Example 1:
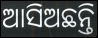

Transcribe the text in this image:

ଆସିଅଛନ୍ତି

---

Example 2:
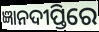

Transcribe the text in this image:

ଜ୍ଞାନଦୀପ୍ତିରେ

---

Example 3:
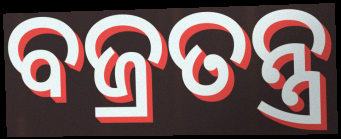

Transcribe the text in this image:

ବଜ୍ରତନ୍ତ୍ର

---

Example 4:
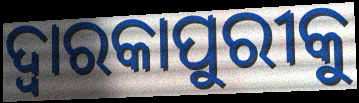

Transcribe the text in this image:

ଦ୍ୱାରକାପୁରୀକୁ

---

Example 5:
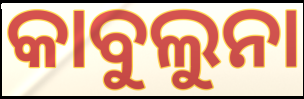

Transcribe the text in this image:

କାବୁଲୁନା